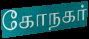
கோநகர்